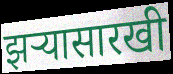
झर्‍यासारखी